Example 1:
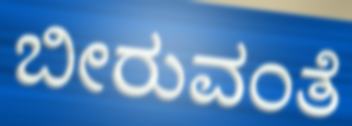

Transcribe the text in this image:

ಬೀರುವಂತೆ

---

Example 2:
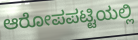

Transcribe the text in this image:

ಆರೋಪಪಟ್ಟಿಯಲ್ಲಿ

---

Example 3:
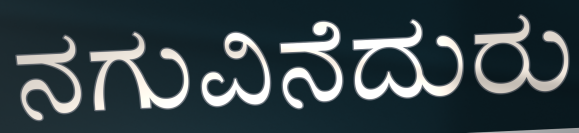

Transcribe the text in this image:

ನಗುವಿನೆದುರು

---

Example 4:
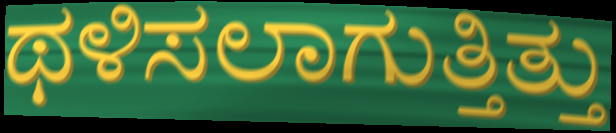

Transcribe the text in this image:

ಥಳಿಸಲಾಗುತ್ತಿತ್ತು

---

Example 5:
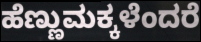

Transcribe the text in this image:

ಹೆಣ್ಣುಮಕ್ಕಳೆಂದರೆ